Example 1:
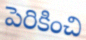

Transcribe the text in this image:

పెరికించి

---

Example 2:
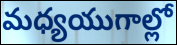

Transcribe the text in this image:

మధ్యయుగాల్లో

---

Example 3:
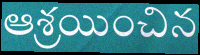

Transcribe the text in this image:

ఆశ్రయించిన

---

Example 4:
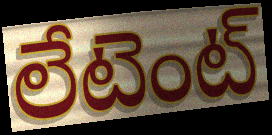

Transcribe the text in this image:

లేటెంట్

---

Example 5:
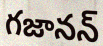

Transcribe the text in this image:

గజానన్